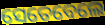
ସେତେବେଲେ